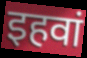
इहवां